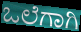
ಒಲೆಗಾಗಿ